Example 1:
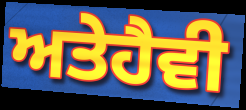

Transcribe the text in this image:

ਅਤੇਹੈਵੀ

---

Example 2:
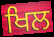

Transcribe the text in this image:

ਖਿਲ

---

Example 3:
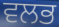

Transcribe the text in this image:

ਵਲਭ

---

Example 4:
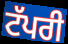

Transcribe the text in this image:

ਟੱਪਰੀ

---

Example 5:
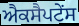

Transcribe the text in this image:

ਐਕਸੈਪਟੇਂਸ